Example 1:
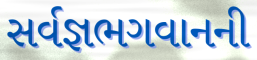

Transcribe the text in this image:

સર્વજ્ઞભગવાનની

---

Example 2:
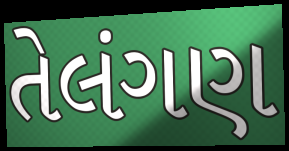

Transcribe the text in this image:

તેલંગણ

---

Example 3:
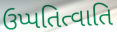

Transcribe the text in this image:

ઉપ્પતિત્વાતિ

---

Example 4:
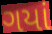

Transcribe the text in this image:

ગયાં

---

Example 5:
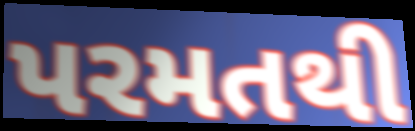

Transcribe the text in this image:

પરમતથી